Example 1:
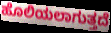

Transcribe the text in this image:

ಹೊಲಿಯಲಾಗುತ್ತದೆ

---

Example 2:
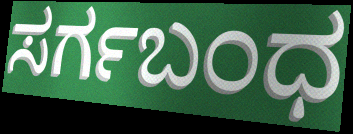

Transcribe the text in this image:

ಸರ್ಗಬಂಧ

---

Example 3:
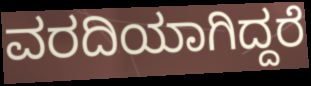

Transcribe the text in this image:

ವರದಿಯಾಗಿದ್ದರೆ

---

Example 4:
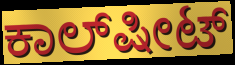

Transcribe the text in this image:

ಕಾಲ್‌ಷೀಟ್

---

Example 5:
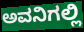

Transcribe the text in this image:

ಅವನಿಗಲ್ಲಿ